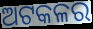
ଅଟକଳର